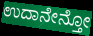
ಉದಾನೇನ್ತೋ